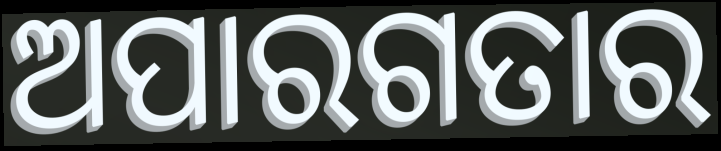
ଅପାରଗତାର